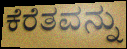
ಕೆರೆತವನ್ನು